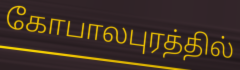
கோபாலபுரத்தில்